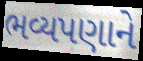
ભવ્યપણાને